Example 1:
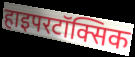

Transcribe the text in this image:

हाइपरटॉक्सिक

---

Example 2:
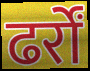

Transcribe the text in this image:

ढर्रों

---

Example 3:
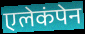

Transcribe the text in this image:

एलेकंपेन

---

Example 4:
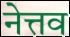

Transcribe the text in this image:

नेत्तव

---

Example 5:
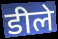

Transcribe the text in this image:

डीले